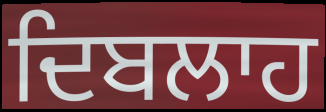
ਦਿਬਲਾਹ